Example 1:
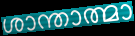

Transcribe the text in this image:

ശാന്താത്മാ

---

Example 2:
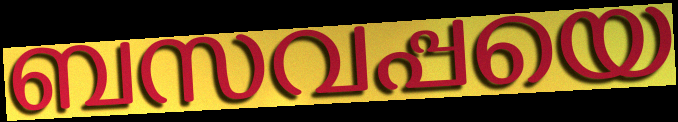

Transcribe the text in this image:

ബസവപ്പയെ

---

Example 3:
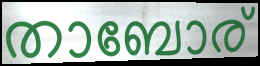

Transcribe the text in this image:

താബോര്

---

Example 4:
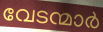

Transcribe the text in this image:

വേടന്മാർ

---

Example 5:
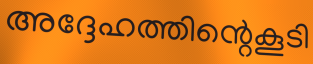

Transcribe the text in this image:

അദ്ദേഹത്തിന്റെകൂടി